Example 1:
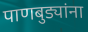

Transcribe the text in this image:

पाणबुड्यांना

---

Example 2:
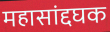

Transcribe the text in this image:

महासांद्दघक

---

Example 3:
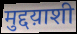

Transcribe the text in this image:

मुद्दय़ाशी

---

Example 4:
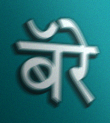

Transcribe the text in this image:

बॅरे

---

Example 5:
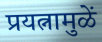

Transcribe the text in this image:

प्रयत्नामुळें